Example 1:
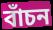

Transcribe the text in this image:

বাঁচন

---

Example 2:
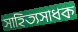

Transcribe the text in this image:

সাহিত্যসাধক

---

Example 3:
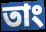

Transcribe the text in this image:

তাং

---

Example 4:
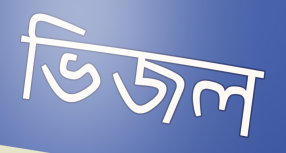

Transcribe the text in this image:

ভিজল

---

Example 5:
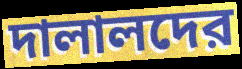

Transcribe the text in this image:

দালালদের